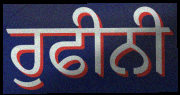
ਰੁਫੀਨੀ